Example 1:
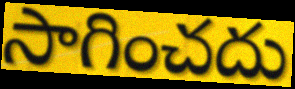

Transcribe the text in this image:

సాగించదు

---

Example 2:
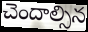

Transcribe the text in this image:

చెందాల్సిన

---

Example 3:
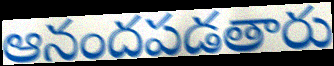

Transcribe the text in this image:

ఆనందపడతారు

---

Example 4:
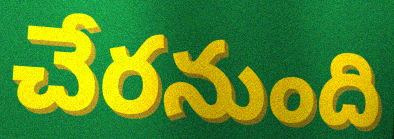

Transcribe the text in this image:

చేరనుంది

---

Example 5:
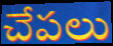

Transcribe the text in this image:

చేపలు